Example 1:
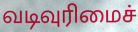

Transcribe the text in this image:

வடிவுரிமைச்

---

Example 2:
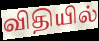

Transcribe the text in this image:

விதியில்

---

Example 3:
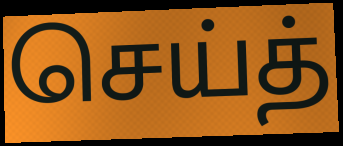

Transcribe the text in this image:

செய்த்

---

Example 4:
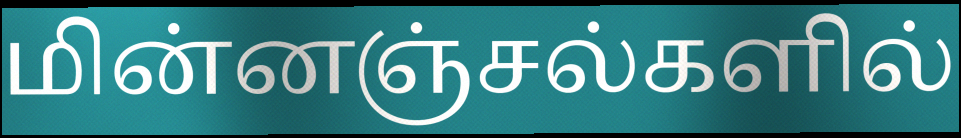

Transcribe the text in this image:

மின்னஞ்சல்களில்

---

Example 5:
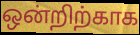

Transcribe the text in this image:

ஒன்றிற்காக